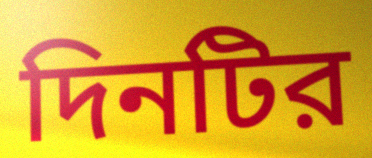
দিনটির